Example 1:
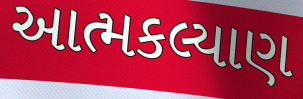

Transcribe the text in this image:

આત્મકલ્યાણ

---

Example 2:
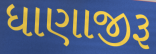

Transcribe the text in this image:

ધાણાજીરૂ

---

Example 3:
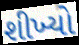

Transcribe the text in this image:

શીખ્યો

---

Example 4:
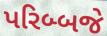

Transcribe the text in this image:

પરિબ્બજે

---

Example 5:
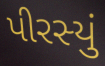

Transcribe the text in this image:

પીરસ્યું